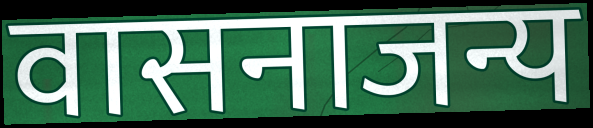
वासनाजन्य